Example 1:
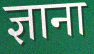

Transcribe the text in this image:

ज्ञाना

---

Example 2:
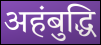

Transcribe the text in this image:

अहंबुद्धि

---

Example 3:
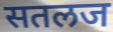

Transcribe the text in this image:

सतलज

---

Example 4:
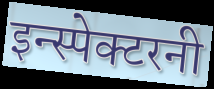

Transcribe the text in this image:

इन्स्पेक्टरनी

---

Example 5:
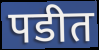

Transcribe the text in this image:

पडीत